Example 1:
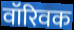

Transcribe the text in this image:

वॉरिवक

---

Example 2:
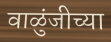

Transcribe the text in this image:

वाळुंजीच्या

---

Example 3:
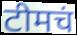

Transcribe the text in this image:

टीमचं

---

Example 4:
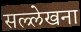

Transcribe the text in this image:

सल्लेखना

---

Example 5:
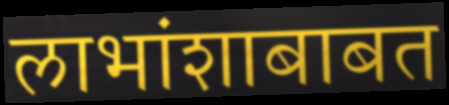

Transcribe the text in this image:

लाभांशाबाबत